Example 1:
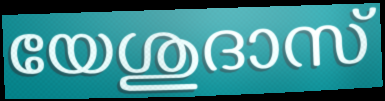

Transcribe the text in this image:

യേശുദാസ്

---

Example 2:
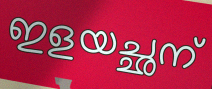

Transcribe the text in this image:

ഇളയച്ഛന്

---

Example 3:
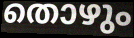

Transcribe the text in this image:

തൊഴും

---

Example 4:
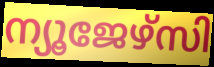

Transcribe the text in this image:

ന്യൂജേഴ്സി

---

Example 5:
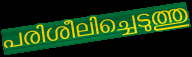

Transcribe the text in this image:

പരിശീലിച്ചെടുത്തു